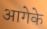
आगेके